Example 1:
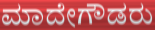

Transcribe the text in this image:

ಮಾದೇಗೌಡರು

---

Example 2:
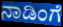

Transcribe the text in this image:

ನಾಡಿಂಗೆ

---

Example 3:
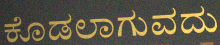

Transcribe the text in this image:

ಕೊಡಲಾಗುವದು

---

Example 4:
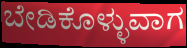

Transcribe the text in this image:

ಬೇಡಿಕೊಳ್ಳುವಾಗ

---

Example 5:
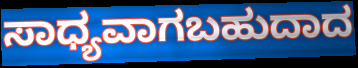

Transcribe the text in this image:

ಸಾಧ್ಯವಾಗಬಹುದಾದ